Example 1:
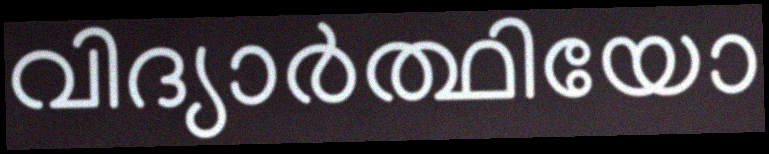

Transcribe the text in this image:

വിദ്യാർത്ഥിയോ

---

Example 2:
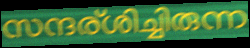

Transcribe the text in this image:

സന്ദര്ശിച്ചിരുന്ന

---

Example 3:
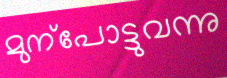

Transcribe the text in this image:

മുന്പോട്ടുവന്നു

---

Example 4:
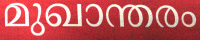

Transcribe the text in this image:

മുഖാന്തരം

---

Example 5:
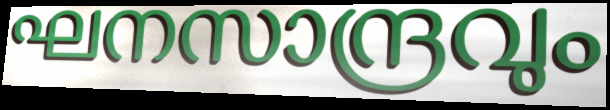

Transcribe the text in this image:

ഘനസാന്ദ്രവും